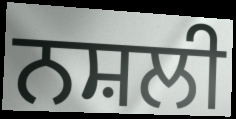
ਨਸ਼ਲੀ